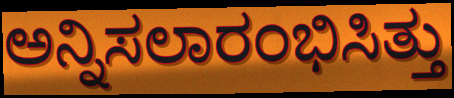
ಅನ್ನಿಸಲಾರಂಭಿಸಿತ್ತು